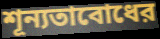
শূন্যতাবোধের